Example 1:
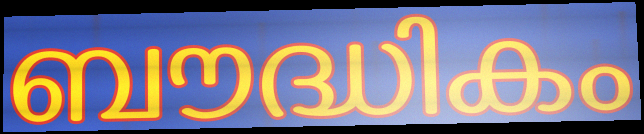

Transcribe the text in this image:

ബൗദ്ധികം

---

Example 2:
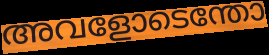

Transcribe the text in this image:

അവളോടെന്തോ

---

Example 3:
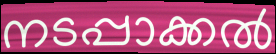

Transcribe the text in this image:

നടപ്പാക്കൽ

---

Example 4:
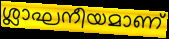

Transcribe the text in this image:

ശ്ലാഘനീയമാണ്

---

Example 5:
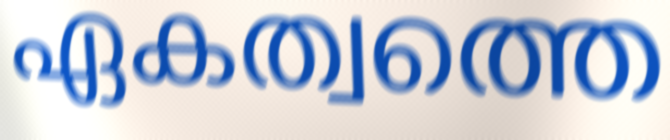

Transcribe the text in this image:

ഏകത്വത്തെ